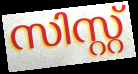
സിസ്റ്റ്